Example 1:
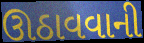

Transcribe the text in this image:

ઊઠાવવાની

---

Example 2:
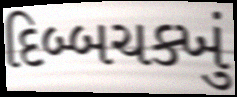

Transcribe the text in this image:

દિબ્બચક્ખું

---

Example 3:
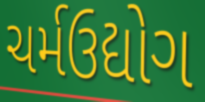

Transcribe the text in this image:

ચર્મઉદ્યોગ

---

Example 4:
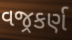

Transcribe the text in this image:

વજ્રકર્ણ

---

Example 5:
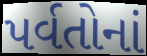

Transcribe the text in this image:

પર્વતોનાં